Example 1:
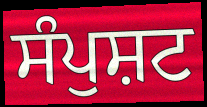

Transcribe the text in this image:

ਸੰਪੁਸ਼ਟ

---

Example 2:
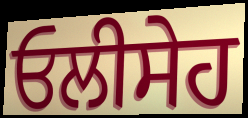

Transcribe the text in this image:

ਓਲੀਸੇਹ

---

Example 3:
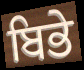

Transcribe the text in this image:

ਬਿਭੇ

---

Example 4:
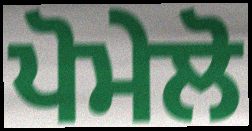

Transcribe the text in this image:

ਪੋਮੇਲੋ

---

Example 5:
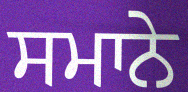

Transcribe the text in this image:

ਸਮਾਨੇ